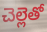
చెల్లెతో